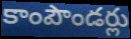
కాంపౌండర్లు